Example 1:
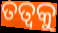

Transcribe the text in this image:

ତତ୍ୱକୁ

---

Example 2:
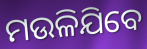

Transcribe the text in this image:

ମଉଳିଯିବେ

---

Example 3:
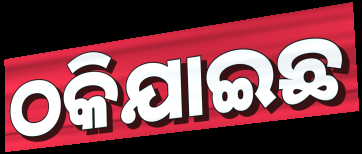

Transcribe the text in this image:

ଠକିଯାଇଛ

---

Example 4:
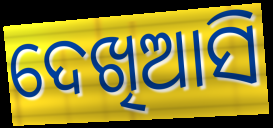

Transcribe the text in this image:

ଦେଖିଆସି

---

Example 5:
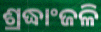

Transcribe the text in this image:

ଶ୍ରଦ୍ଧାଂଜଳି